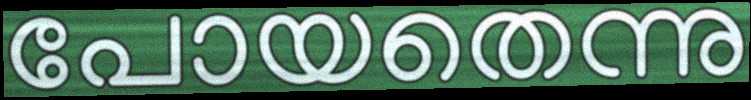
പോയതെന്നു